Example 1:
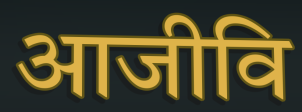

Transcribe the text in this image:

आजीवि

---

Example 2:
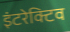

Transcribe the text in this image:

इंटरेक्टिव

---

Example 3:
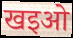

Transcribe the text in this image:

खइओ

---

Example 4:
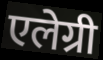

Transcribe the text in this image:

एलेग्री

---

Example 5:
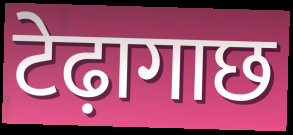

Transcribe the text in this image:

टेढ़ागाछ